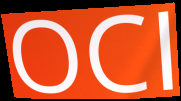
OCI